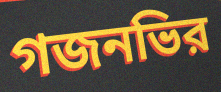
গজনভির